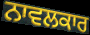
ਨਾਵਲਕਾਰ